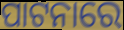
ପାଟନାରେ